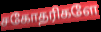
சகோதரிகளே